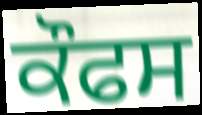
ਕੌਫਸ